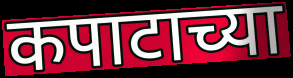
कपाटाच्या